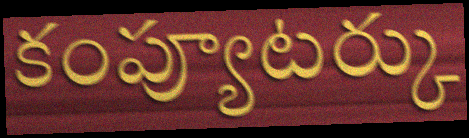
కంప్యూటర్కు